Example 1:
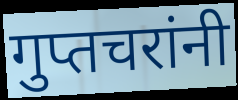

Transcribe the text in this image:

गुप्तचरांनी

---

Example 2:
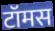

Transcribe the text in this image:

टॉमस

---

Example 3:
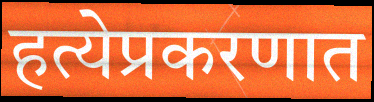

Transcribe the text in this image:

हत्येप्रकरणात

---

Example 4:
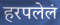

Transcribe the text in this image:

हरपलेलं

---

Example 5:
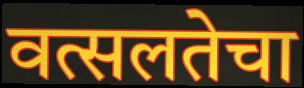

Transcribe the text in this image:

वत्सलतेचा